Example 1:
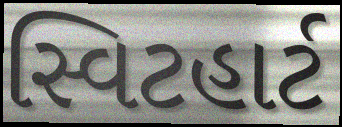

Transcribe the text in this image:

સ્વિટહાર્ટ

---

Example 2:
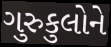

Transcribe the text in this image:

ગુરુકુલોને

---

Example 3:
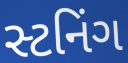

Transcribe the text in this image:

સ્ટનિંગ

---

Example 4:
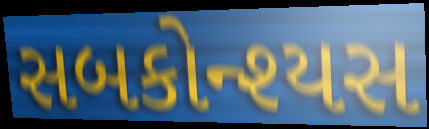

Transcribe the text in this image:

સબકોન્શ્યસ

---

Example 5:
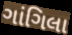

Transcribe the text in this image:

ગાંગિલા